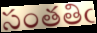
సంతతిఁ